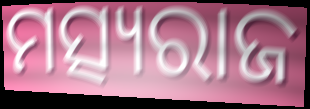
ମତ୍ସ୍ୟରାଜ